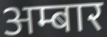
अम्बार